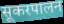
सूकरपालन